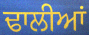
ਢਾਲੀਆਂ